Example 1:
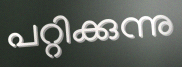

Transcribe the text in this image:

പറ്റിക്കുന്നു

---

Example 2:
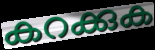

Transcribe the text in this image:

കറക്കുക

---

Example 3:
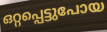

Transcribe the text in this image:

ഒറ്റപ്പെട്ടുപോയ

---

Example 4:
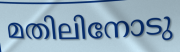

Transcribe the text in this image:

മതിലിനോടു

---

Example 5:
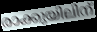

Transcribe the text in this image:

രാക്കുയിലിന്